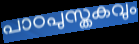
പാഠപുസ്തകവും